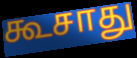
கூசாது